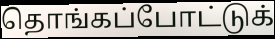
தொங்கப்போட்டுக்